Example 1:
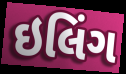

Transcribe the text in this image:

ઇલિંગ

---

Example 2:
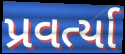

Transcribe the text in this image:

પ્રવર્ત્યા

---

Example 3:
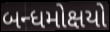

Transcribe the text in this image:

બન્ધમોક્ષયો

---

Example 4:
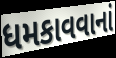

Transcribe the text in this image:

ધમકાવવાનાં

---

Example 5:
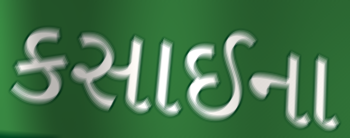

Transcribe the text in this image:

કસાઈના